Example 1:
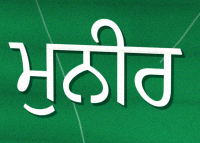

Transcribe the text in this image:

ਮੁਨੀਰ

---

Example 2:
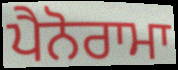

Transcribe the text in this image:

ਪੈਨੋਰਾਮਾ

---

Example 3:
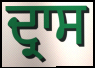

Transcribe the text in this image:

ਦ੍ਰਾਸ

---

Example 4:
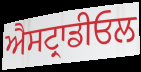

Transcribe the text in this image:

ਐਸਟ੍ਰਾਡੀਓਲ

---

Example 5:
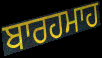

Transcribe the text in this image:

ਬਾਰਹਮਾਹ